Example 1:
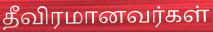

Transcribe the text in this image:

தீவிரமானவர்கள்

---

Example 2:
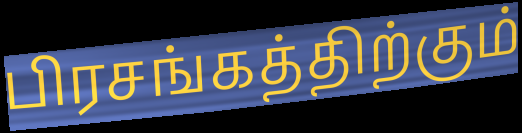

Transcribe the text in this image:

பிரசங்கத்திற்கும்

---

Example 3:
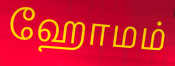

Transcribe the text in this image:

ஹோமம்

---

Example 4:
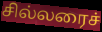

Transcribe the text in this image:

சில்லரைச்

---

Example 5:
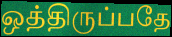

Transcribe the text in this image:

ஒத்திருப்பதே